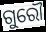
ଗୁରୌ